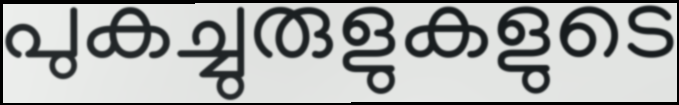
പുകച്ചുരുളുകളുടെ